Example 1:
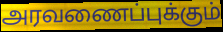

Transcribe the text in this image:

அரவணைப்புக்கும்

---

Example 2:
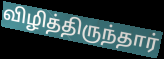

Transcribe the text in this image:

விழித்திருந்தார்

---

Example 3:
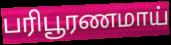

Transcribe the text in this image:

பரிபூரணமாய்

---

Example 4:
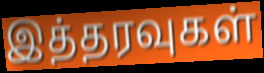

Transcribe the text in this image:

இத்தரவுகள்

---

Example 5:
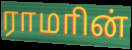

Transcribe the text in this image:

ராமரின்